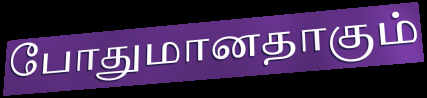
போதுமானதாகும்